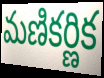
మణికర్ణిక